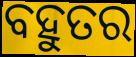
ବହୁତର